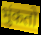
भुंकतो